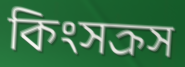
কিংসক্রস